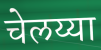
चेलय्या